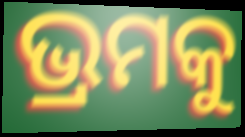
ଭ୍ରମକୁ